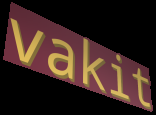
vakit